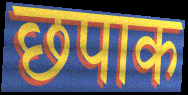
छपाक